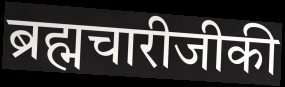
ब्रह्मचारीजीकी